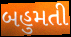
બહુમતી